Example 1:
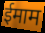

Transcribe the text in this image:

ईमाम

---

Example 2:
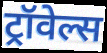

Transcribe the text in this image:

ट्रॉवेल्स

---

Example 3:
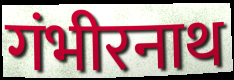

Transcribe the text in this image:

गंभीरनाथ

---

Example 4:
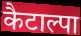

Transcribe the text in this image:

कैटाल्पा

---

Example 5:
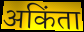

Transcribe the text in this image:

अकिंता